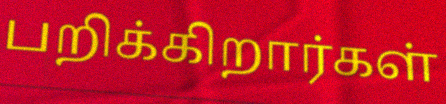
பறிக்கிறார்கள்